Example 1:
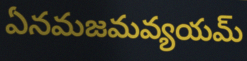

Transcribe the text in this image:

ఏనమజమవ్యయమ్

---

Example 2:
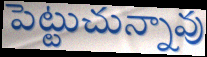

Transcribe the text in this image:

పెట్టుచున్నావు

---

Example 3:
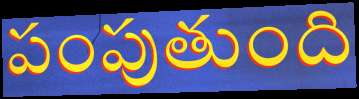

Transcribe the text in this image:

పంపుతుంది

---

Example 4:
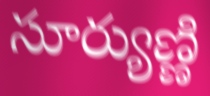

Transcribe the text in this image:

సూర్యుణ్ణి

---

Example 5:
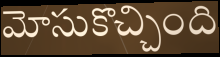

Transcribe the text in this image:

మోసుకొచ్చింది